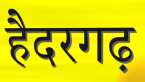
हैदरगढ़